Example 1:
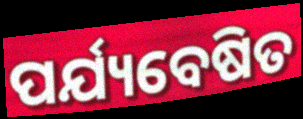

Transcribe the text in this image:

ପର୍ଯ୍ୟବେଷିତ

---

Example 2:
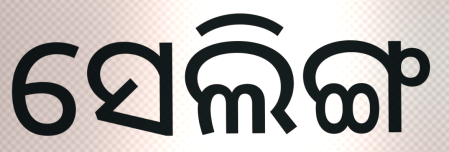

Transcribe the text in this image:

ସେଲିଙ୍ଗ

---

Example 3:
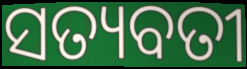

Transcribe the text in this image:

ସତ୍ୟବତୀ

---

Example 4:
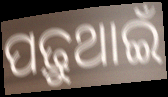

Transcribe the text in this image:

ପଢ଼ୁଥାଇଁ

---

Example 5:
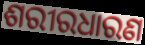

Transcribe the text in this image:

ଶରୀରଧାରଣ